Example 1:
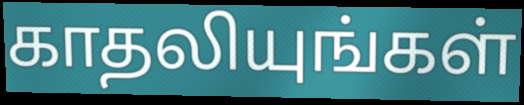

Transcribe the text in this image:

காதலியுங்கள்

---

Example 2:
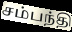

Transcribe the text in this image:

சம்பந்தி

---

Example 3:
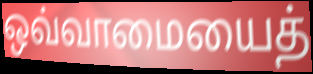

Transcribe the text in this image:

ஒவ்வாமையைத்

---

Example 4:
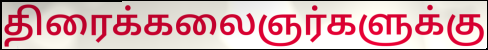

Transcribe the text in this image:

திரைக்கலைஞர்களுக்கு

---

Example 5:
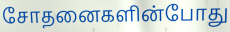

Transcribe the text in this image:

சோதனைகளின்போது